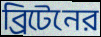
ব্রিটেনের